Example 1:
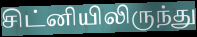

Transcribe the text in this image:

சிட்னியிலிருந்து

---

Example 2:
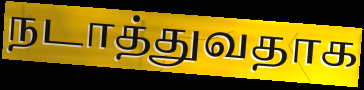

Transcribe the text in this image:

நடாத்துவதாக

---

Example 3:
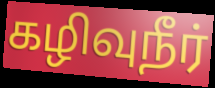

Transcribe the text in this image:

கழிவுநீர்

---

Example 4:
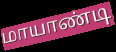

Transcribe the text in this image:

மாயாண்டி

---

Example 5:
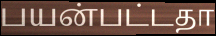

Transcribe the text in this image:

பயன்பட்டதா